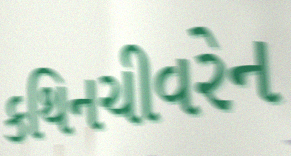
કથિનચીવરેન